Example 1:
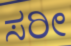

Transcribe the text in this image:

ಸರೀ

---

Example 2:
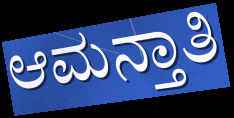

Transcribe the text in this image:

ಆಮನ್ತಾತಿ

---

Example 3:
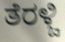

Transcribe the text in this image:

ತೆರಳ್ಚಿ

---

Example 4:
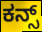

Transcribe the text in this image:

ಕನ್ಸ್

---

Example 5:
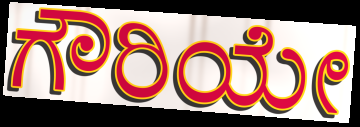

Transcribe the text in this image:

ಗೌರಿಯೇ